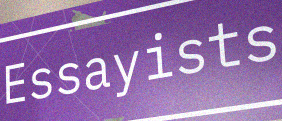
Essayists